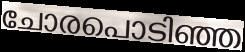
ചോരപൊടിഞ്ഞ